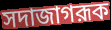
সদাজাগরূক